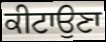
ਕੀਟਾਉਣਾ